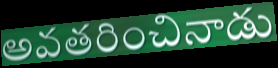
అవతరించినాడు